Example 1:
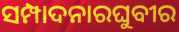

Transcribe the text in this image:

ସମ୍ପାଦନାରଘୁବୀର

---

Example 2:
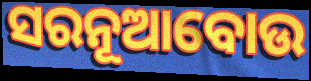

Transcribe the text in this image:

ସରନୂଆବୋଉ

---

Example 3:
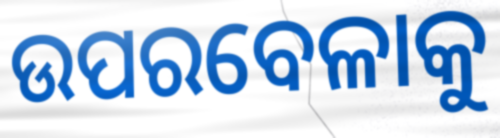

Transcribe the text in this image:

ଉପରବେଳାକୁ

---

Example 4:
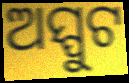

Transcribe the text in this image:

ଅସ୍ପୁଟ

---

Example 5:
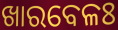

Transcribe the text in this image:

ଖାରବେଳଃ